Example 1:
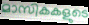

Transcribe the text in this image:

മാസികകളുടെ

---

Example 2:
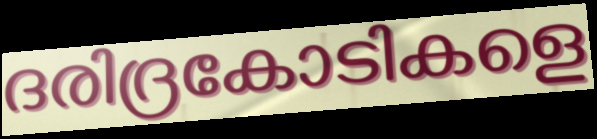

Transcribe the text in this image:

ദരിദ്രകോടികളെ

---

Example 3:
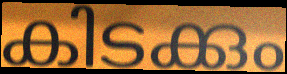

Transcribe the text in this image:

കിടക്കും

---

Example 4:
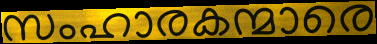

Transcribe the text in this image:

സംഹാരകന്മാരെ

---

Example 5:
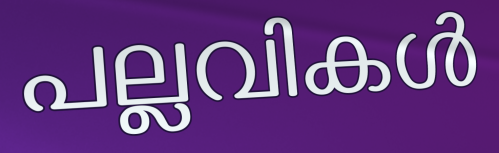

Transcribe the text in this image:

പല്ലവികൾ